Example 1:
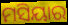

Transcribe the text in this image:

ମସିୟାର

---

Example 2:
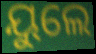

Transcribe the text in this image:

ୟୁଲେ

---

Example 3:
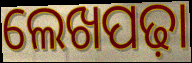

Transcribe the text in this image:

ଲେଖପଢ଼ା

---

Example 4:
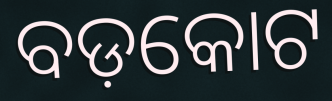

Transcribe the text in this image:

ବଡ଼କୋଟ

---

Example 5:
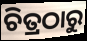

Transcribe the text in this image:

ଚିତ୍ରଠାରୁ